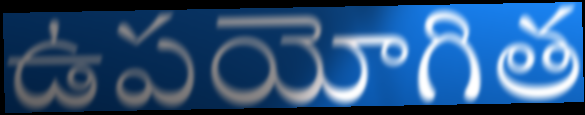
ఉపయోగిత